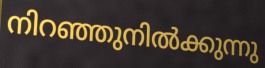
നിറഞ്ഞുനിൽക്കുന്നു